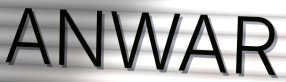
ANWAR